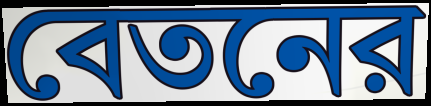
বেতনের